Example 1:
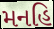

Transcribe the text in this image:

મનહિ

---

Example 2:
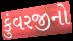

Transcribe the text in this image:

કુંવરજીનો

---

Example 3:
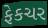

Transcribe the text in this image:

ફેકચર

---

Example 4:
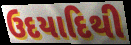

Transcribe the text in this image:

ઉદયાદિથી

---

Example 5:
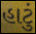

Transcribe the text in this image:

હાટું